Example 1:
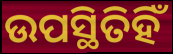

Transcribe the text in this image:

ଉପସ୍ଥିତିହିଁ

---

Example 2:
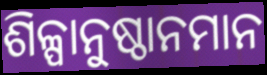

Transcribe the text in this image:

ଶିଳ୍ପାନୁଷ୍ଠାନମାନ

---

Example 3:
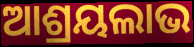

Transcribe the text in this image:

ଆଶ୍ରୟଲାଭ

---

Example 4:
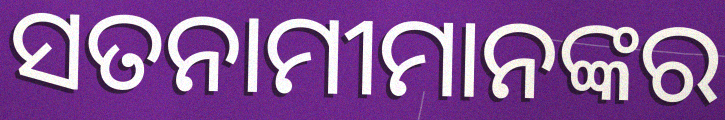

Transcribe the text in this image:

ସତନାମୀମାନଙ୍କର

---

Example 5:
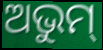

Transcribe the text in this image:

ଅଭୁମ୍